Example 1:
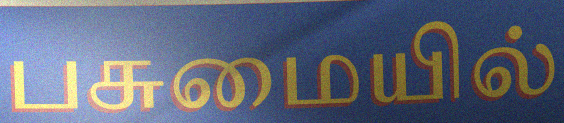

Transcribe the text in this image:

பசுமையில்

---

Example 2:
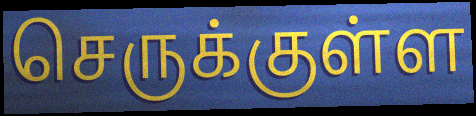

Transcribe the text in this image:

செருக்குள்ள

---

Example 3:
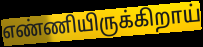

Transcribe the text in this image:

எண்ணியிருக்கிறாய்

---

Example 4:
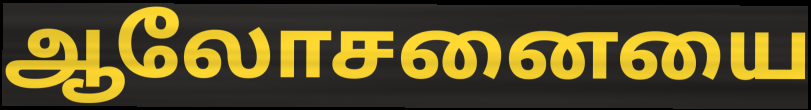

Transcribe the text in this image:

ஆலோசனையை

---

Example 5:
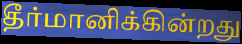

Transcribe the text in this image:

தீர்மானிக்கின்றது